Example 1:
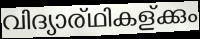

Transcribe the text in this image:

വിദ്യാര്ഥികള്ക്കും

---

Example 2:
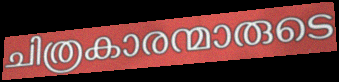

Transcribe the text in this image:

ചിത്രകാരന്മാരുടെ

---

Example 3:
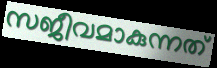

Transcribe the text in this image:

സജീവമാകുന്നത്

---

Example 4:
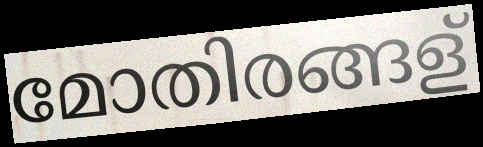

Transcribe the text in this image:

മോതിരങ്ങള്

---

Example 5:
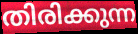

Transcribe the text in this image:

തിരിക്കുന്ന